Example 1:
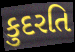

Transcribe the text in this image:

કુદરતિ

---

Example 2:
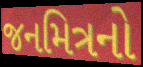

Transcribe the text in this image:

જનમિત્રનો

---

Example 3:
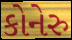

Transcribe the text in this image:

કોનેરુ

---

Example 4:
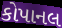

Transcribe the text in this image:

કોપાનલ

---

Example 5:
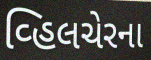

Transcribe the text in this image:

વ્હિલચેરના